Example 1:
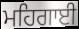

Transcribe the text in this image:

ਮਹਿਗਾਈ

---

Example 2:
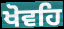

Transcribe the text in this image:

ਖੋਵਹਿ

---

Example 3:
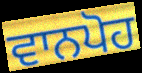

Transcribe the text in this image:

ਵਾਨਪੋਹ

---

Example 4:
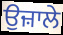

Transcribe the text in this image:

ਉਜ਼ਾਲੇ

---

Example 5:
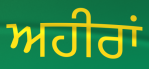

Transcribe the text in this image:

ਅਹੀਰਾਂ